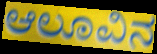
ಆಲೂವಿನ